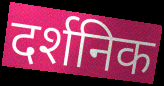
दर्शनिक